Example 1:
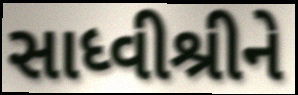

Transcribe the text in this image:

સાધ્વીશ્રીને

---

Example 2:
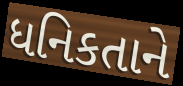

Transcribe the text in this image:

ધનિકતાને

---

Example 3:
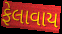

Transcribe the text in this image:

ફેલાવાય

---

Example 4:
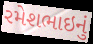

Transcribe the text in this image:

રમેશભાઇનું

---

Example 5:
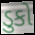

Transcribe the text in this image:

ડુકો